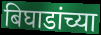
बिघाडांच्या